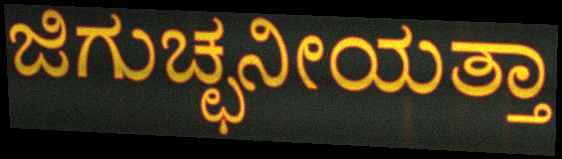
ಜಿಗುಚ್ಛನೀಯತ್ತಾ